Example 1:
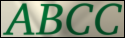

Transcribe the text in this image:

ABCC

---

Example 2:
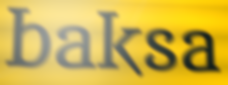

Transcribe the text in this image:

baksa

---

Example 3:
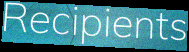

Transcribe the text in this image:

Recipients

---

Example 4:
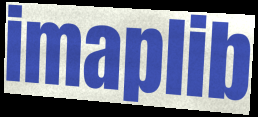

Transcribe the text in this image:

imaplib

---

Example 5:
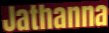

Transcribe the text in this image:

Jathanna